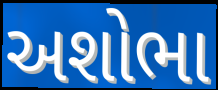
અશોભા